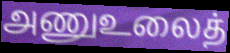
அணுஉலைத்